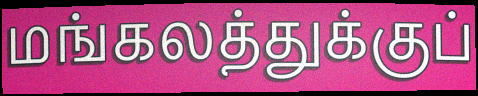
மங்கலத்துக்குப்